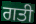
ਗਤੀ